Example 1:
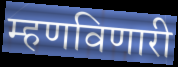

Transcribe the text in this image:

म्हणविणारी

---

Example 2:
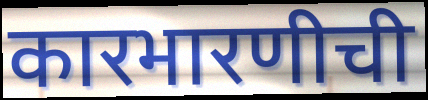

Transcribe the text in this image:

कारभारणीची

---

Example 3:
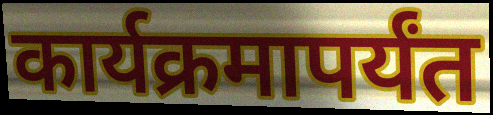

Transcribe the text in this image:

कार्यक्रमापर्यंत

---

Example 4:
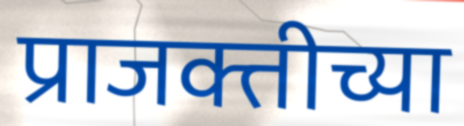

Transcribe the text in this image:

प्राजक्तीच्या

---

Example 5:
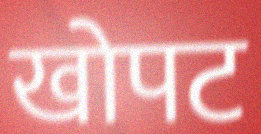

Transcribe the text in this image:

खोपट